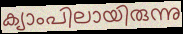
ക്യാംപിലായിരുന്നു